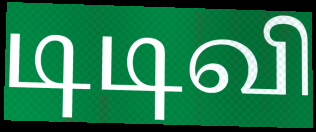
டிடிவி